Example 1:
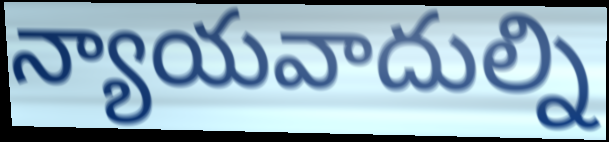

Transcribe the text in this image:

న్యాయవాదుల్ని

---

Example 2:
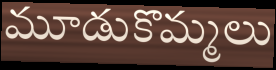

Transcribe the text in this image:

మూడుకొమ్మలు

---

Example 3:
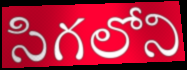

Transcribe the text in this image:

సిగలోని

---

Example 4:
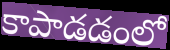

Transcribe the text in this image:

కాపాడడంలో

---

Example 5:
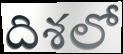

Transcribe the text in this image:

దిశలో